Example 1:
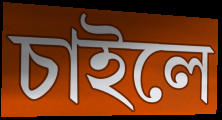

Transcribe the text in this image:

চাইলে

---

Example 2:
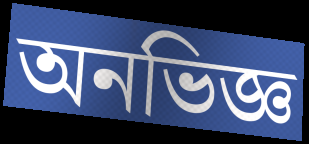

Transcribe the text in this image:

অনভিজ্ঞ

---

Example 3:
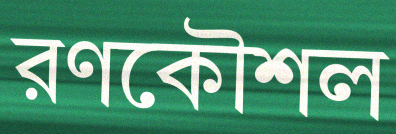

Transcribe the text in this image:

রণকৌশল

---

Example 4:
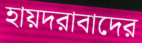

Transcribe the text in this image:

হায়দরাবাদের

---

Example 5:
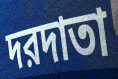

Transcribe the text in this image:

দরদাতা